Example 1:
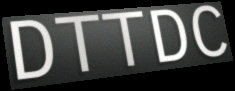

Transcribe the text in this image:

DTTDC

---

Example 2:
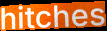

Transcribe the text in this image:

hitches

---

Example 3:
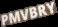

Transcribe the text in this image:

PMVBRY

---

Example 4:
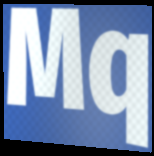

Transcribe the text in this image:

Mq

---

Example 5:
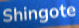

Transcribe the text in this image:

Shingote